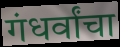
गंधर्वांचा